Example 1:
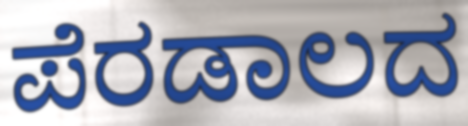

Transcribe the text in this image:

ಪೆರಡಾಲದ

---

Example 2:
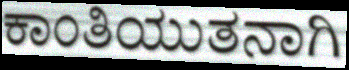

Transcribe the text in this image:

ಕಾಂತಿಯುತನಾಗಿ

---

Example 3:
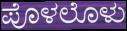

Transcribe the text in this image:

ಪೊಳಲೊಳು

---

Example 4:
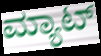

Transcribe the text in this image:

ಮ್ಯಾಟ್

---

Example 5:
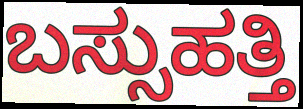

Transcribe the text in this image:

ಬಸ್ಸುಹತ್ತಿ